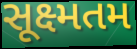
સૂક્ષ્મતમ